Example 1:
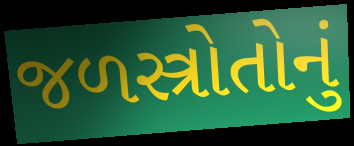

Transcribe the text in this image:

જળસ્ત્રોતોનું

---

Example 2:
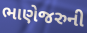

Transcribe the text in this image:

ભાણેજરુની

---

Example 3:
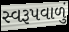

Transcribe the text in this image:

સ્વરૂપવાળું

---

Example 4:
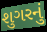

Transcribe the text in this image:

શુગરનું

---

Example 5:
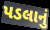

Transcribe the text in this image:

પડલાનું